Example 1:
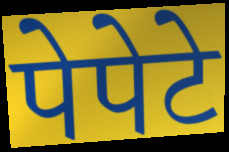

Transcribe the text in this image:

पेपेटे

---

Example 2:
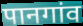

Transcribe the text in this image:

पानगांव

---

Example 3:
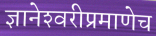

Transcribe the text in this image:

ज्ञानेश्वरीप्रमाणेच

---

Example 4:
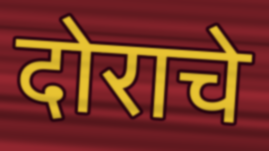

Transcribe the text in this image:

दोराचे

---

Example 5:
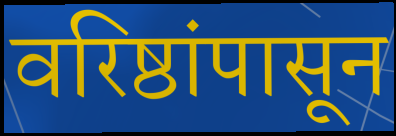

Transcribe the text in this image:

वरिष्ठांपासून